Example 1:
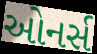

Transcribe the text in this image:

ઓનર્સ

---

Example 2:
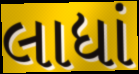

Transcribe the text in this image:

લાદ્યાં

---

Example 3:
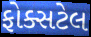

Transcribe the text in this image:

ફોક્સટેલ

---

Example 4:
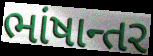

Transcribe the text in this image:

ભાંષાન્તર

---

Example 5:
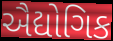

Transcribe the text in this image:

ઐદ્યોગિક